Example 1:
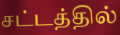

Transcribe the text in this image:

சட்டத்தில்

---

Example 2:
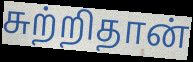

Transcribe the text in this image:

சுற்றிதான்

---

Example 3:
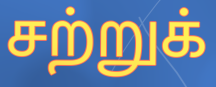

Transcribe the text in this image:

சற்றுக்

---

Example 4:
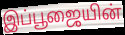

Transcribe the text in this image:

இப்பூஜையின்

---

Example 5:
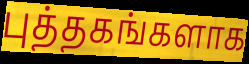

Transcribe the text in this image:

புத்தகங்களாக